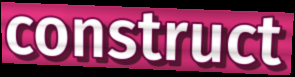
construct